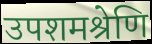
उपशमश्रेणि